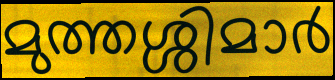
മുത്തശ്ശിമാർ